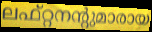
ലഫ്റ്റനന്റുമാരായ